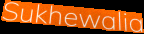
Sukhewalia